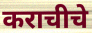
कराचीचे